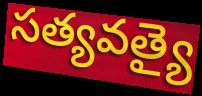
సత్యవత్యై